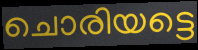
ചൊരിയട്ടെ